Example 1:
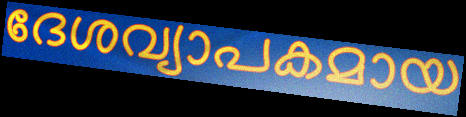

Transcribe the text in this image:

ദേശവ്യാപകമായ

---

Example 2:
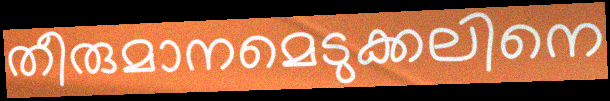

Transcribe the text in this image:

തീരുമാനമെടുക്കലിനെ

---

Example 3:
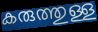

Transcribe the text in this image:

കരുത്തുള്ള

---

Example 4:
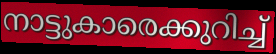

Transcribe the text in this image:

നാട്ടുകാരെക്കുറിച്ച്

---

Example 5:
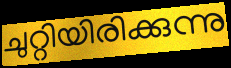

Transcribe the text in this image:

ചുറ്റിയിരിക്കുന്നു